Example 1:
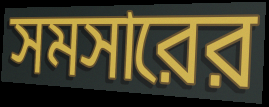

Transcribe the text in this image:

সমসারের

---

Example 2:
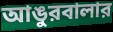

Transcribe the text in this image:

আঙুরবালার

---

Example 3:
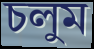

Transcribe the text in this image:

চলুম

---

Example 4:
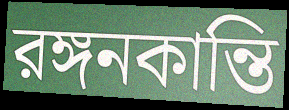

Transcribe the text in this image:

রঙ্গনকান্তি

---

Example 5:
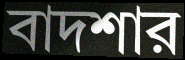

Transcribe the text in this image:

বাদশার